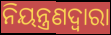
ନିୟନ୍ତ୍ରଣଦ୍ବାରା